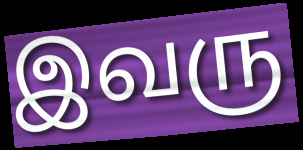
இவரு